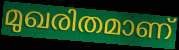
മുഖരിതമാണ്